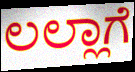
ಲಲ್ಲಾಗೆ